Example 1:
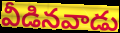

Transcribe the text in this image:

వీడినవాడు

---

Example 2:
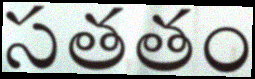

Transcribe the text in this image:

సతతం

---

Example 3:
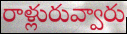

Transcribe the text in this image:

రాళ్లురువ్వారు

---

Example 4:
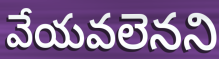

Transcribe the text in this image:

వేయవలెనని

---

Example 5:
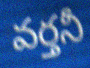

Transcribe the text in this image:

వర్తనీ